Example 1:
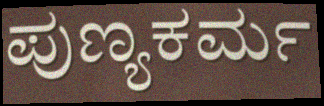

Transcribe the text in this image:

ಪುಣ್ಯಕರ್ಮ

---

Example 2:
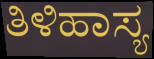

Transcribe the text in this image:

ತಿಳಿಹಾಸ್ಯ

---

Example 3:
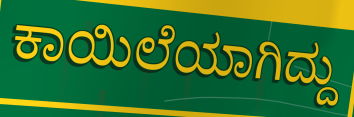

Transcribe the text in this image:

ಕಾಯಿಲೆಯಾಗಿದ್ದು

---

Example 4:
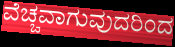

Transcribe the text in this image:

ವೆಚ್ಚವಾಗುವುದರಿಂದ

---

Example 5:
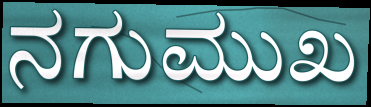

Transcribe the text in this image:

ನಗುಮುಖ